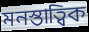
মনস্তাত্বিক